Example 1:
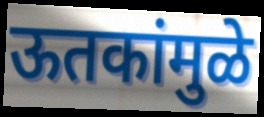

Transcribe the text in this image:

ऊतकांमुळे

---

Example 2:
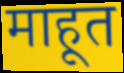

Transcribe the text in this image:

माहूत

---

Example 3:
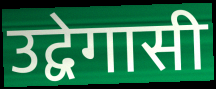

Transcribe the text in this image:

उद्वेगासी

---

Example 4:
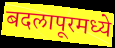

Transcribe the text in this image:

बदलापूरमध्ये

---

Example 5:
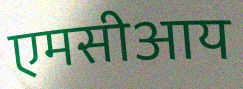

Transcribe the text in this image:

एमसीआय